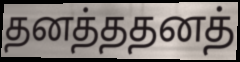
தனத்ததனத்